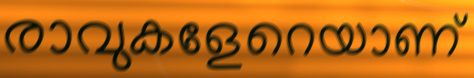
രാവുകളേറെയാണ്